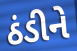
ઠંડીને